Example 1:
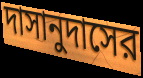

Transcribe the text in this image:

দাসানুদাসের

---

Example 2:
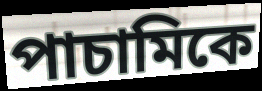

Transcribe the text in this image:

পাচামিকে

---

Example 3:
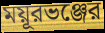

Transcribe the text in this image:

ময়ূরভঞ্জের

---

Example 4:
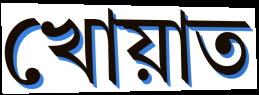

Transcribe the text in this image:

খোয়াত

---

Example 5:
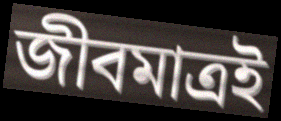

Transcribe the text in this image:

জীবমাত্রই